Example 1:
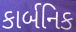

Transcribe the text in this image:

કાર્બનિક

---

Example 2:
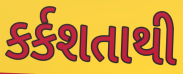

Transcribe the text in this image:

કર્કશતાથી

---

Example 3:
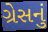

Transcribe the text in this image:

ગ્રેસનું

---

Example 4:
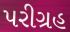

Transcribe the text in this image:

પરીગ્રહ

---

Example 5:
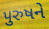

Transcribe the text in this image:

પુરુષને